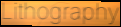
Lithography